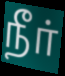
நீர்